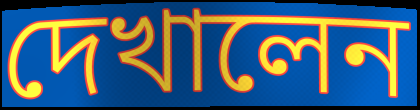
দেখালেন